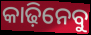
କାଢ଼ିନେବୁ